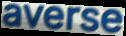
averse